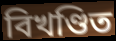
বিখণ্ডিত